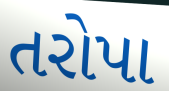
તરોપા